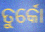
ତୁର୍କୋ